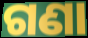
ଗଣା